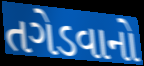
તગેડવાનો